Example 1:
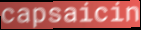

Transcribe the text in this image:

capsaicin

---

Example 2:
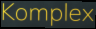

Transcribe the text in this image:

Komplex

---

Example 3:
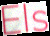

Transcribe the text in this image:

Els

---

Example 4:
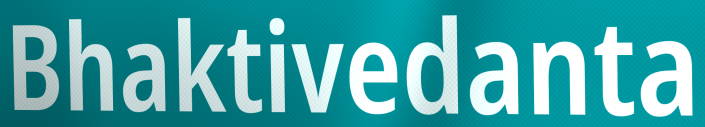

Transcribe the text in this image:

Bhaktivedanta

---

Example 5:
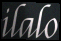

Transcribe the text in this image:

ilalo